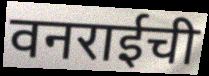
वनराईची